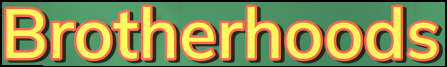
Brotherhoods